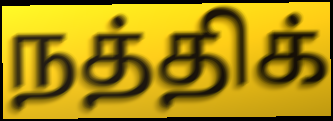
நத்திக்